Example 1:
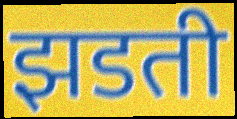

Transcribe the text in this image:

झडती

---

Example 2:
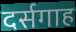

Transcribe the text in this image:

दर्सगाह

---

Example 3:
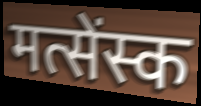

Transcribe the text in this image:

मत्सेंस्क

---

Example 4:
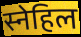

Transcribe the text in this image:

स्नेहिल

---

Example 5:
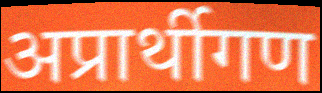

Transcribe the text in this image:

अप्रार्थीगण